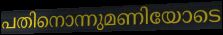
പതിനൊന്നുമണിയോടെ